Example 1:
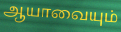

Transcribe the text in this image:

ஆயாவையும்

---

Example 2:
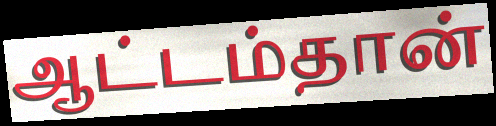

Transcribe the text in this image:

ஆட்டம்தான்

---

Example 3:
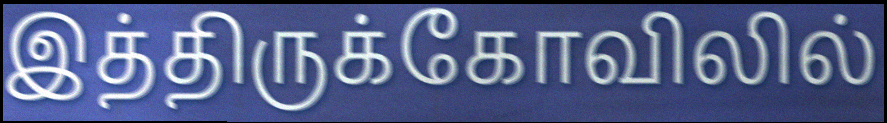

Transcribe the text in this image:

இத்திருக்கோவிலில்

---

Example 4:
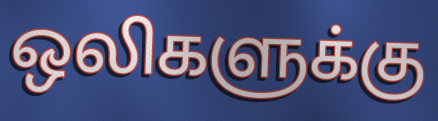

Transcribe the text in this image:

ஒலிகளுக்கு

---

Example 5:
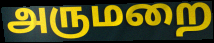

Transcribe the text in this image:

அருமறை